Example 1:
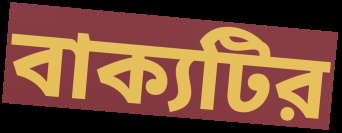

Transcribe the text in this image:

বাক্যটির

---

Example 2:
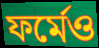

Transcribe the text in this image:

ফর্মেও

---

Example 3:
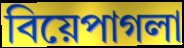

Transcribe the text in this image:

বিয়েপাগলা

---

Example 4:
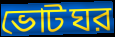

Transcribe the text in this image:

ভোটঘর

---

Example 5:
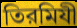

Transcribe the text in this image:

তিরমিযী